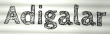
Adigalar